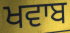
ਖਵਾਬ